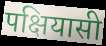
पक्षियासी